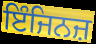
ਇੰਜਿਨਜ਼